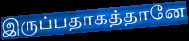
இருப்பதாகத்தானே